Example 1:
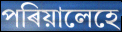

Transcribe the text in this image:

পৰিয়ালেহে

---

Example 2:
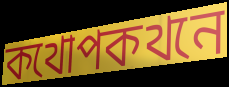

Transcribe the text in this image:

কথোপকথনে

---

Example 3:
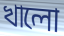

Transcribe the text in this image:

খালো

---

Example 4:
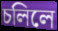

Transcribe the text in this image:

চলিলে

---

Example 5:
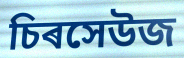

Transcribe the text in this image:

চিৰসেউজ